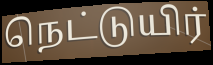
நெட்டுயிர்